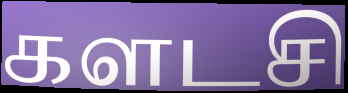
களடசி